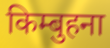
किम्बुहना